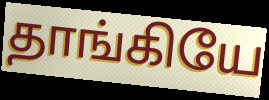
தாங்கியே